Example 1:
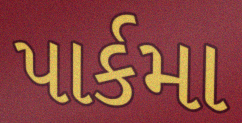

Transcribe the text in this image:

પાર્કમા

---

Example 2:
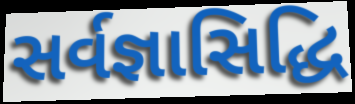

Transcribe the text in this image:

સર્વજ્ઞાસિદ્ધિ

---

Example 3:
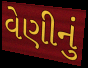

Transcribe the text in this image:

વેણીનું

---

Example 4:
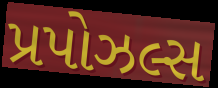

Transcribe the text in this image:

પ્રપોઝલ્સ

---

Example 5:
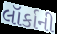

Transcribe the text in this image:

લૉર્કાની